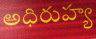
అధిరుహ్య